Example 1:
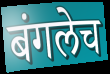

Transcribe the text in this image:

बंगलेच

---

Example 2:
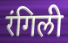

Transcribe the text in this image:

रंगिली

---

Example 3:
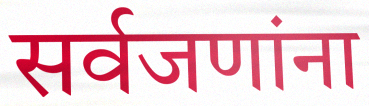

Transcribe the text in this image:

सर्वजणांना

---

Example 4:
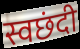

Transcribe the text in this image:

स्वछंदी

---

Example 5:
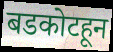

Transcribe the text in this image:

बडकोटहून